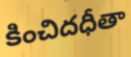
కించిదధీతా